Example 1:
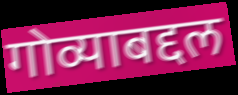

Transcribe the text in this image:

गोव्याबद्दल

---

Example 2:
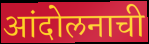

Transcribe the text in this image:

आंदोलनाची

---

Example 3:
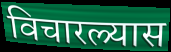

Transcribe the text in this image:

विचारल्यास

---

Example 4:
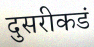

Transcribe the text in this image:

दुसरीकडं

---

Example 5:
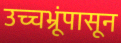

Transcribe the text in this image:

उच्चभ्रूंपासून